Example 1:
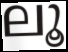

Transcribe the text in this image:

ലൂ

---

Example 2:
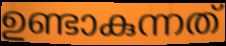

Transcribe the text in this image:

ഉണ്ടാകുന്നത്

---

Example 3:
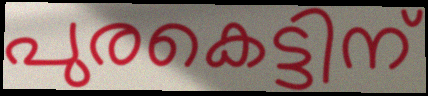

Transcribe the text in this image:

പുരകെട്ടിന്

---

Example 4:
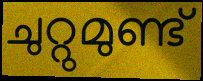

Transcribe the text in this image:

ചുറ്റുമുണ്ട്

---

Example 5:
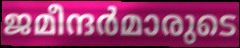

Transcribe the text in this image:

ജമീന്ദർമാരുടെ